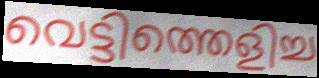
വെട്ടിത്തെളിച്ച